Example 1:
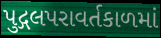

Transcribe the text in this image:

પુદ્ગલપરાવર્તકાળમાં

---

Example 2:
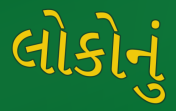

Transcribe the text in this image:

લોકોનું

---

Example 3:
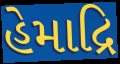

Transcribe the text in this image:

હેમાદ્રિ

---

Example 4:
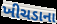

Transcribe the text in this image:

ખીચડાના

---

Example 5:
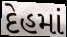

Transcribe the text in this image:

દેહમાં